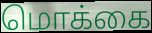
மொக்கை